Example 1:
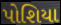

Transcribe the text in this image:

પોશિયા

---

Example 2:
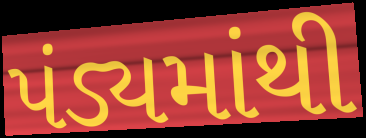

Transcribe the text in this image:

પંડ્યમાંથી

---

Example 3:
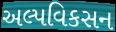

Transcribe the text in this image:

અલ્પવિકસન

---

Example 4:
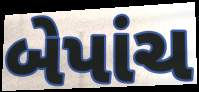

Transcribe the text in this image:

બેપાંચ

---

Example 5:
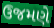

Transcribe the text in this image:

ઉજમણે